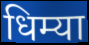
धिम्या